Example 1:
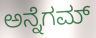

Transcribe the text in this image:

ಅನ್ನೆಗಮ್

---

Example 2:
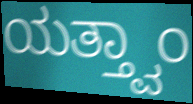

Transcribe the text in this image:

ಯತ್ತ್ವಾಂ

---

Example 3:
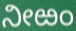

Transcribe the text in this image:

ನೀಱಂ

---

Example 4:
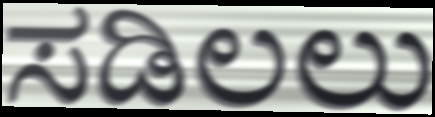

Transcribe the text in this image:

ಸಡಿಲಲು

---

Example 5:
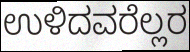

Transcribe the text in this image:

ಉಳಿದವರೆಲ್ಲರ